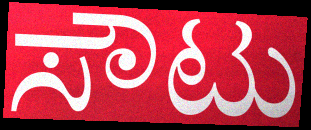
ಸೌಟು